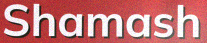
Shamash